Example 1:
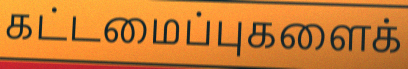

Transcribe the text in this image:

கட்டமைப்புகளைக்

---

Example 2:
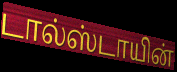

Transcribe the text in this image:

டால்ஸ்டாயின்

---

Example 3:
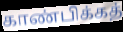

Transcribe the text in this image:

காண்பிக்கத்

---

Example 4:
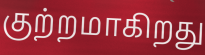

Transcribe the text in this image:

குற்றமாகிறது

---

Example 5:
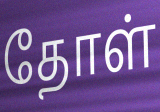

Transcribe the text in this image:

தோள்